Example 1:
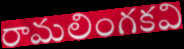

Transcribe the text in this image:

రామలింగకవి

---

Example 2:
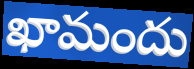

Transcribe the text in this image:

ఖామందు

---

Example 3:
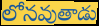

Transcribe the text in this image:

లోనవుతాడు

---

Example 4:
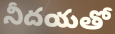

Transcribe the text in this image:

నీదయతో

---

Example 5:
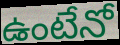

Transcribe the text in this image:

ఉంటేనో